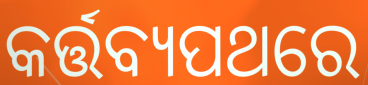
କର୍ତ୍ତବ୍ୟପଥରେ